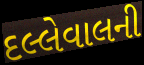
દલ્લેવાલની